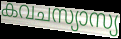
കവചസ്യാസ്യ